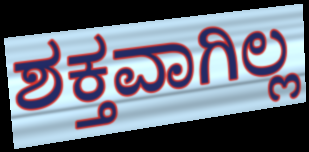
ಶಕ್ತವಾಗಿಲ್ಲ